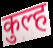
कुल्ह